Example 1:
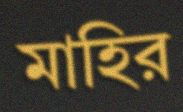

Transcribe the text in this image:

মাহির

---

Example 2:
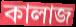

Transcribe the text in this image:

কালাজ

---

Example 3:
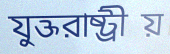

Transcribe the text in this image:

যুক্তরাষ্ট্রীয়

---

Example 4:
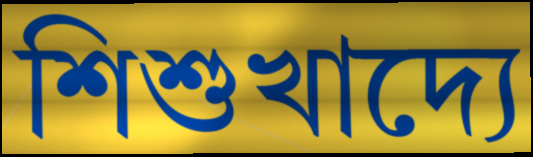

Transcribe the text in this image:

শিশুখাদ্যে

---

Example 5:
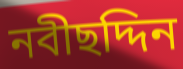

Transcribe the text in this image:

নবীছদ্দিন